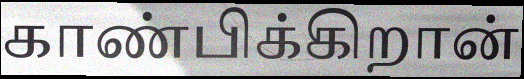
காண்பிக்கிறான்